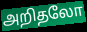
அறிதலோ